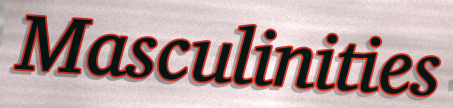
Masculinities